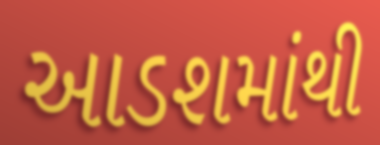
આડશમાંથી